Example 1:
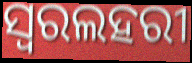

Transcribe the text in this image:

ସ୍ୱରଲହରୀ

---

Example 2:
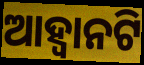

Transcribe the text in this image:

ଆହ୍ଵାନଟି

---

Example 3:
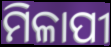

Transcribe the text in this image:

ମିଳାପୀ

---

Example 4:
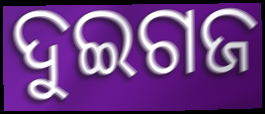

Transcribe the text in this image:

ଦୁଇଗଜ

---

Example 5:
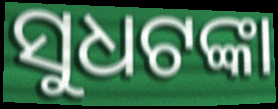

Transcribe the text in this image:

ସୁଧଟଙ୍କା